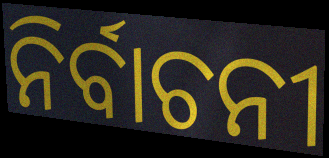
ନିର୍ବାଚନୀ